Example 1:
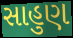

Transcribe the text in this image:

સાહુણ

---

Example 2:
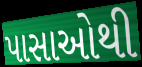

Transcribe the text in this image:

પાસાઓથી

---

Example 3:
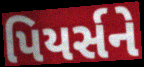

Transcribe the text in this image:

પિયર્સને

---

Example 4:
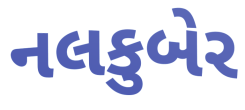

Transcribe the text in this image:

નલકુબેર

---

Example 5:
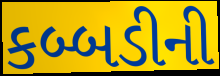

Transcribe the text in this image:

કબ્બડીની